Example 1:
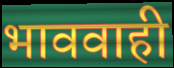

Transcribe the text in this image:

भाववाही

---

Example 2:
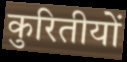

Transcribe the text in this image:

कुरितीयों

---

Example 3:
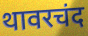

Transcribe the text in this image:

थावरचंद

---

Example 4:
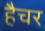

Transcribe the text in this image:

हैचर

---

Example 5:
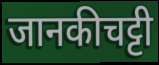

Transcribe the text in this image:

जानकीचट्टी